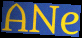
ANe